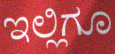
ಇಲ್ಲಿಗೂ